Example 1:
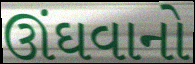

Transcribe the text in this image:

ઊંઘવાનો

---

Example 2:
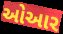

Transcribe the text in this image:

ઓઆર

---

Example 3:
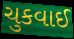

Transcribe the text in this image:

ચુકવાઈ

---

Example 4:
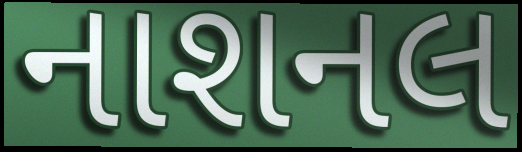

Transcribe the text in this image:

નાશનલ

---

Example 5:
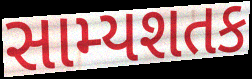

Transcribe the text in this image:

સામ્યશતક